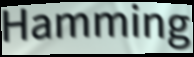
Hamming